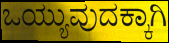
ಒಯ್ಯುವುದಕ್ಕಾಗಿ